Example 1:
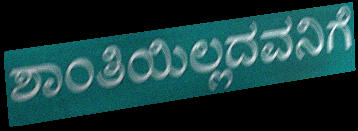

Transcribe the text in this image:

ಶಾಂತಿಯಿಲ್ಲದವನಿಗೆ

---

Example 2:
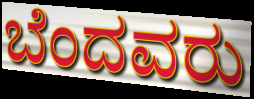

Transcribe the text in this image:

ಬೆಂದವರು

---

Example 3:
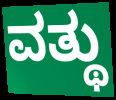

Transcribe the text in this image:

ವತ್ಥು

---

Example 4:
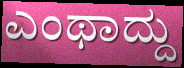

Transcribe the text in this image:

ಎಂಥಾದ್ದು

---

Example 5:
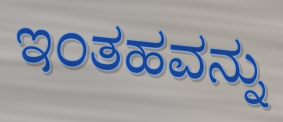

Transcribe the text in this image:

ಇಂತಹವನ್ನು